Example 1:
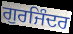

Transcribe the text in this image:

ਗੁਰਜਿੰਦਰ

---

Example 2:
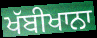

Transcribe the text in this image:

ਖੱਬੀਖਾਨਾ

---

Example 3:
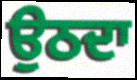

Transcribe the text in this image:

ਉਠਦਾ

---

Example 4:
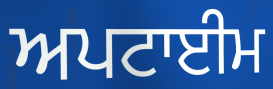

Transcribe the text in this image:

ਅਪਟਾਈਮ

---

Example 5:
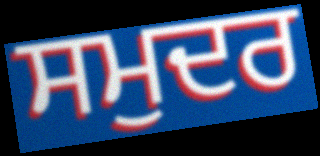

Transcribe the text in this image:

ਸਮੁਦਰ